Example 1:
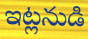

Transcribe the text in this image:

ఇట్లనుడి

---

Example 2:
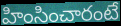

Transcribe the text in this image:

హింసించారంటే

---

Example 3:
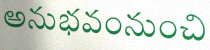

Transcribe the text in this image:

అనుభవంనుంచి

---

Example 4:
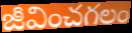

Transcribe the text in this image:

జీవించగలం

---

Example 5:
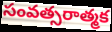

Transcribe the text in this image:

సంవత్సరాత్మక